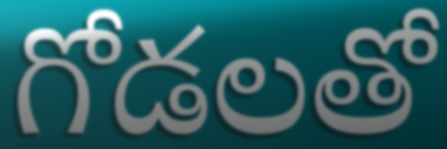
గోడలతో